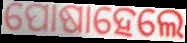
ପୋଷାହେଲେ